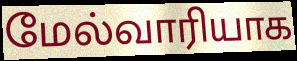
மேல்வாரியாக